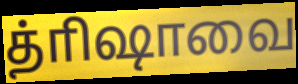
த்ரிஷாவை